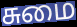
சுமை